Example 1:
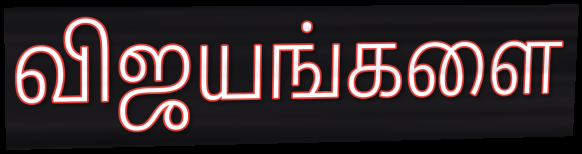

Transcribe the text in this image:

விஜயங்களை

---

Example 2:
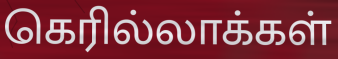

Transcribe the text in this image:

கெரில்லாக்கள்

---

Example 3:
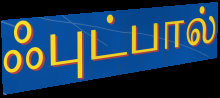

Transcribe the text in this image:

ஃபுட்பால்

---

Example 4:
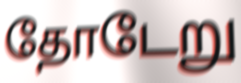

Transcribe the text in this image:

தோடேறு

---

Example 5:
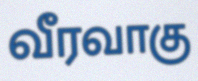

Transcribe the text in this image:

வீரவாகு